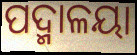
ପଦ୍ମାଳୟା